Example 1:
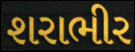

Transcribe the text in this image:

શરાભીર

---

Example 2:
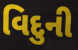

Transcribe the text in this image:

વિદુની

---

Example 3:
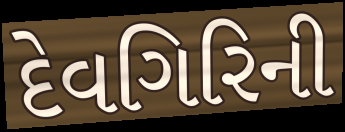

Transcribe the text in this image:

દેવગિરિની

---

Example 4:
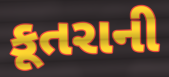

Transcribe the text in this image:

કૂતરાની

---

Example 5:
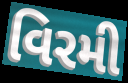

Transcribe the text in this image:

વિરમી